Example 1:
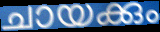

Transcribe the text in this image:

ചായക്കും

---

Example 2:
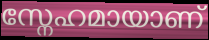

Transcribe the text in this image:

സ്നേഹമായാണ്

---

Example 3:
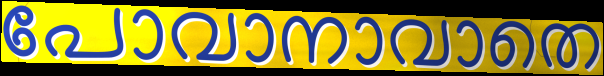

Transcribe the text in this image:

പോവാനാവാതെ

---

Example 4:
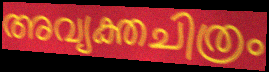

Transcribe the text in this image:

അവ്യക്തചിത്രം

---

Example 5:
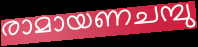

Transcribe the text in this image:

രാമായണചമ്പു